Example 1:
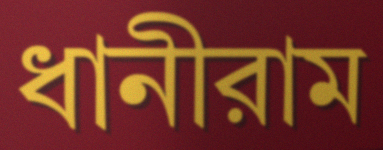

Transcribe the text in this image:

ধানীরাম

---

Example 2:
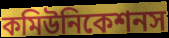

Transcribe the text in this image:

কমিউনিকেশনস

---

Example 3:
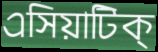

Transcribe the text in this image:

এসিয়াটিক্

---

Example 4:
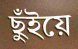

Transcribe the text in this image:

ছুঁইয়ে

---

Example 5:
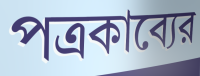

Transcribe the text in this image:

পত্রকাব্যের